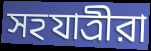
সহযাত্রীরা